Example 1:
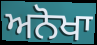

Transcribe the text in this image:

ਅਨੋਖਾ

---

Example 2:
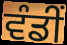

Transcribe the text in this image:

ਵੰਡੀਂ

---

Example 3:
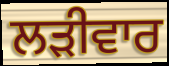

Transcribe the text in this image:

ਲੜੀਵਾਰ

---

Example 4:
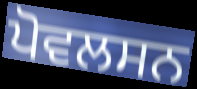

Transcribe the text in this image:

ਪੋਵਲਸਨ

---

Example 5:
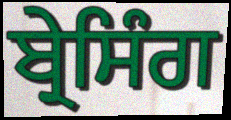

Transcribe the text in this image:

ਬ੍ਰੇਸਿੰਗ